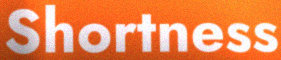
Shortness